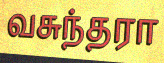
வசுந்தரா